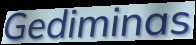
Gediminas